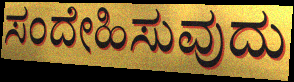
ಸಂದೇಹಿಸುವುದು